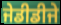
ਜੇਡੀਡੀਜੇ